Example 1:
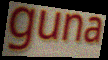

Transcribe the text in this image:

guna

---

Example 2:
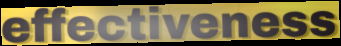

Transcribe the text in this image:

effectiveness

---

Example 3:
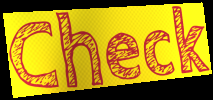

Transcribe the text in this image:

Check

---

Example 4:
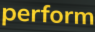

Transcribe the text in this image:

perform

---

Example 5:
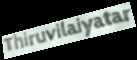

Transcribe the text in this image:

Thiruvilaiyatar